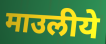
माउलीये